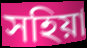
সহিয়া